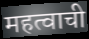
महत्वाची